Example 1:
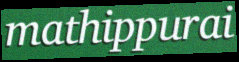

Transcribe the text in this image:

mathippurai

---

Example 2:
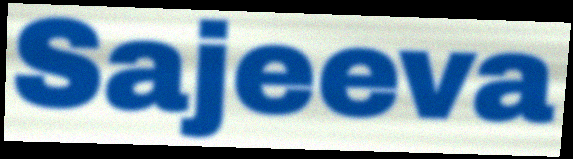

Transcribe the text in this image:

Sajeeva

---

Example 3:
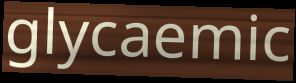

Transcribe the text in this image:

glycaemic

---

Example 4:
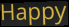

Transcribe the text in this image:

Happy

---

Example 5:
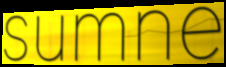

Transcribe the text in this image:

sumne